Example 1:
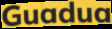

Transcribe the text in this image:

Guadua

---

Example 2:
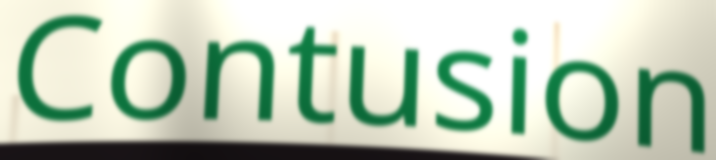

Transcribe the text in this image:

Contusion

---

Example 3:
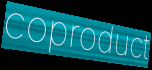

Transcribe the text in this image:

coproduct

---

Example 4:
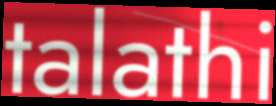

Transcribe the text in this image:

talathi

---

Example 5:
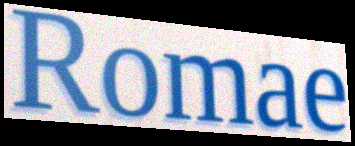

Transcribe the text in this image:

Romae